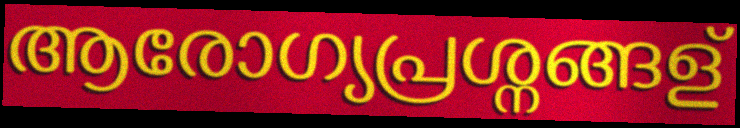
ആരോഗ്യപ്രശ്നങ്ങള്